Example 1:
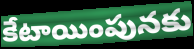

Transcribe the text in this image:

కేటాయింపునకు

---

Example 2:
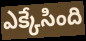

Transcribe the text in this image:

ఎక్కేసింది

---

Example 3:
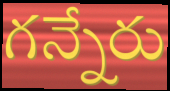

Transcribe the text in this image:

గన్నేరు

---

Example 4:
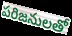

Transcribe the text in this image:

పరిజనులతో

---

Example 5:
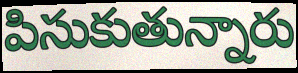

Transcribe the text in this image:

పిసుకుతున్నారు